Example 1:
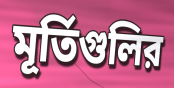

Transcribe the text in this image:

মূর্তিগুলির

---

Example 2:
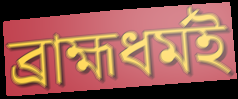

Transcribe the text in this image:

ব্রাহ্মধর্মই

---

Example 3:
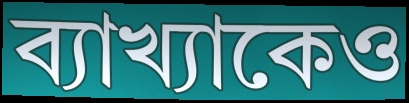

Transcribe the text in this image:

ব্যাখ্যাকেও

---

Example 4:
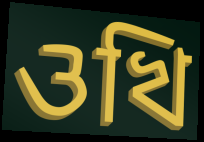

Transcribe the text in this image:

ওখি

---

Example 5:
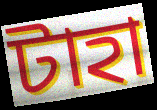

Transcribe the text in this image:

টাহা